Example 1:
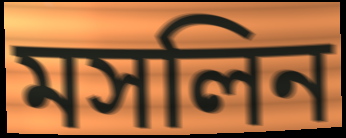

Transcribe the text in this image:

মসলিন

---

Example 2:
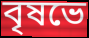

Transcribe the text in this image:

বৃষভে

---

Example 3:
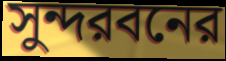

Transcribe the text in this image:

সুন্দরবনের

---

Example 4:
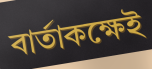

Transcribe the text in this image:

বার্তাকক্ষেই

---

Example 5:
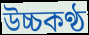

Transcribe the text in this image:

উচ্চকণ্ঠ